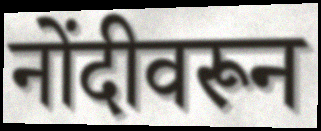
नोंदीवरून